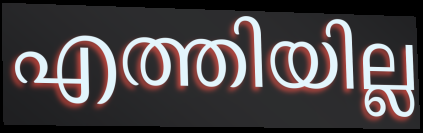
എത്തിയില്ല